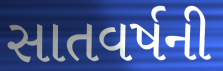
સાતવર્ષની